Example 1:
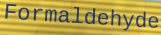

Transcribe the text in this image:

Formaldehyde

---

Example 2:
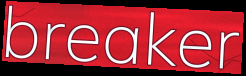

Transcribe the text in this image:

breaker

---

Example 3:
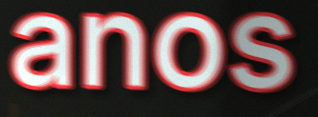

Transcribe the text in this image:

anos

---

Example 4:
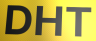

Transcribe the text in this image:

DHT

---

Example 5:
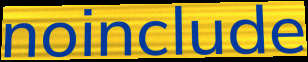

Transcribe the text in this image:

noinclude